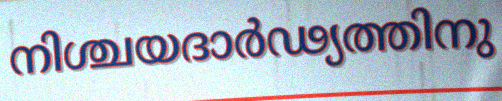
നിശ്ചയദാർഢ്യത്തിനു